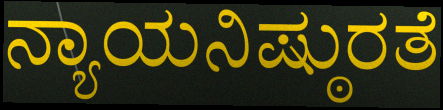
ನ್ಯಾಯನಿಷ್ಠುರತೆ